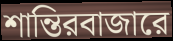
শান্তিরবাজারে